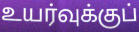
உயர்வுக்குப்